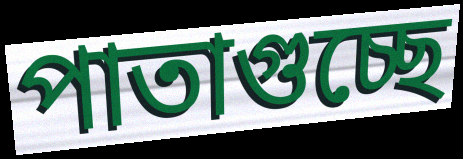
পাতাগুচ্ছে